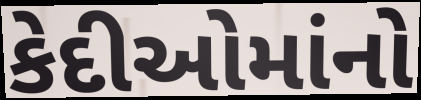
કેદીઓમાંનો